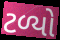
ટળ્યો